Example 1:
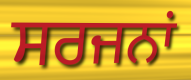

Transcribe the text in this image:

ਸਰਜਨਾਂ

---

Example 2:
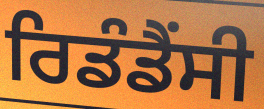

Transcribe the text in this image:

ਰਿਡੰਡੈਂਸੀ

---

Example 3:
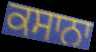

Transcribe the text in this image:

ਕਸਾਨਾ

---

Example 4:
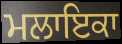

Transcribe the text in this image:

ਮਲਾਇਕਾ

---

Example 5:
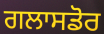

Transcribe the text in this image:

ਗਲਾਸਡੋਰ